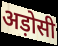
अड़ोसी